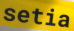
setia